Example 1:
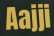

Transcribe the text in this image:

Aajji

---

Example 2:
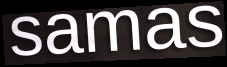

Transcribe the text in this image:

samas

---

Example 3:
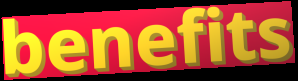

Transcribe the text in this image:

benefits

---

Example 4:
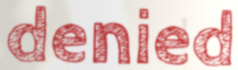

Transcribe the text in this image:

denied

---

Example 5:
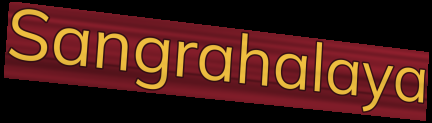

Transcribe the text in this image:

Sangrahalaya